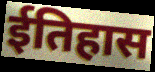
ईतिहास